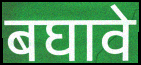
बघावे